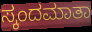
ಸ್ಕಂದಮಾತಾ